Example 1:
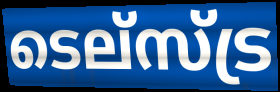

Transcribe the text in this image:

ടെല്സ്ട്ര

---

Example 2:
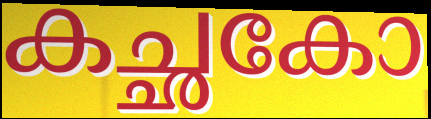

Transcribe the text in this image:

കച്ഛകോ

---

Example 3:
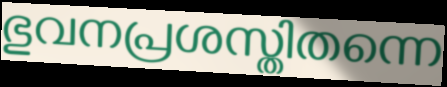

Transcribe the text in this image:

ഭുവനപ്രശസ്തിതന്നെ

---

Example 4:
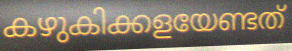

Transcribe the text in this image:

കഴുകിക്കളയേണ്ടത്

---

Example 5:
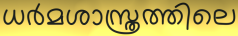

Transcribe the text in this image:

ധർമശാസ്ത്രത്തിലെ